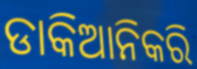
ଡାକିଆନିକରି